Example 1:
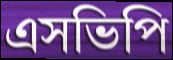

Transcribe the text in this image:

এসভিপি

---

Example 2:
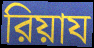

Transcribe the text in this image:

রিয়ায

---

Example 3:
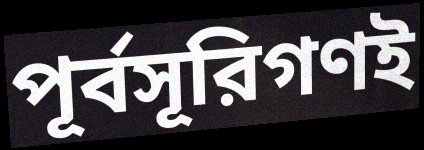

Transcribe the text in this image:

পূর্বসূরিগণই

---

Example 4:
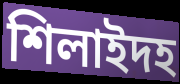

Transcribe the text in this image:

শিলাইদহ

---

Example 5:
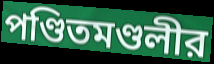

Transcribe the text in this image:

পণ্ডিতমণ্ডলীর